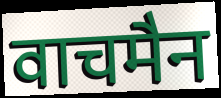
वाचमैन